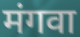
मंगवा